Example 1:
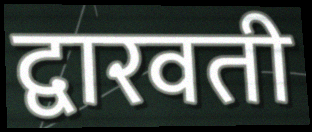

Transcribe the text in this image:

द्वारवती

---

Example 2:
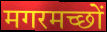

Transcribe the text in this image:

मगरमच्छों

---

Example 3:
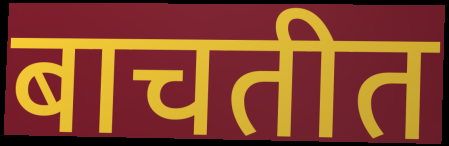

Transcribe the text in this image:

बाचतीत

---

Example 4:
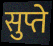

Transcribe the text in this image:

सुप्ते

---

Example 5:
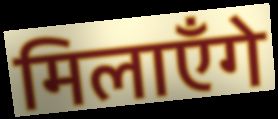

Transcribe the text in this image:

मिलाएँगे